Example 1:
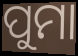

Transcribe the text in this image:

ପୁମା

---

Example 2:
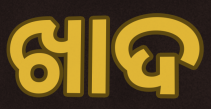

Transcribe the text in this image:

ଖାଦ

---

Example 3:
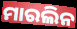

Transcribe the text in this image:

ମାରଲିନ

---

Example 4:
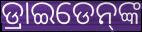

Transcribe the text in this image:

ଡ୍ରାଇଡେନ୍‌ଙ୍କ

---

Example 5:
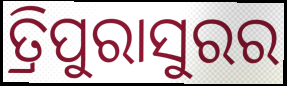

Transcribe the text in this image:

ତ୍ରିପୁରାସୁରର